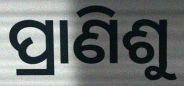
ପ୍ରାଣିଶୁ